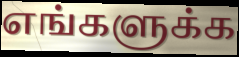
எங்களுக்க